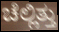
ಚೆಲ್ಲಿತ್ತು